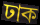
ঢাক